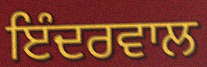
ਇੰਦਰਵਾਲ